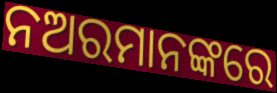
ନଅରମାନଙ୍କରେ